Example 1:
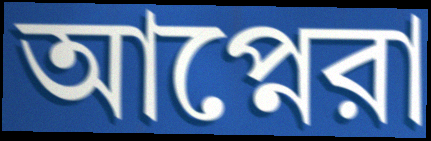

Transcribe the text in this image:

আপ্নেরা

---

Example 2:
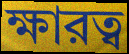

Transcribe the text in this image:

ক্ষারত্ব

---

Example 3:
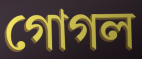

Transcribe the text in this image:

গোগল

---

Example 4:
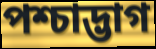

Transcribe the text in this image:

পশ্চাদ্ভাগ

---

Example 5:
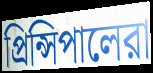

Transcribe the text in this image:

প্রিন্সিপালেরা